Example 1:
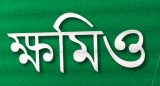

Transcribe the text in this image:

ক্ষমিও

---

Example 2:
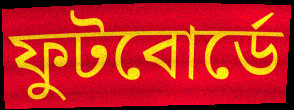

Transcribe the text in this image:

ফুটবোর্ডে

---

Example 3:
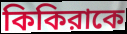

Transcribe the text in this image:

কিকিরাকে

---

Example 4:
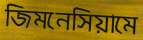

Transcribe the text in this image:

জিমনেসিয়ামে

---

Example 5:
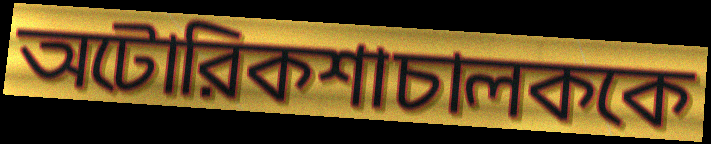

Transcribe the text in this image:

অটোরিকশাচালককে